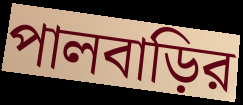
পালবাড়ির